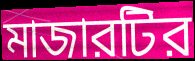
মাজারটির